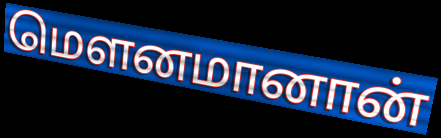
மௌனமானான்